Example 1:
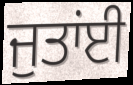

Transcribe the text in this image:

ਜੁਤਾਂਈ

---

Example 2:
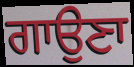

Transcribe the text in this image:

ਗਾਉਣਾ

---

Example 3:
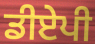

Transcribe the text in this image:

ਡੀਏਪੀ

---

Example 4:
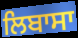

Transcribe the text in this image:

ਲਿਬਾਸਾ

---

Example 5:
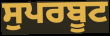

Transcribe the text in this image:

ਸੁਪਰਬੂਟ